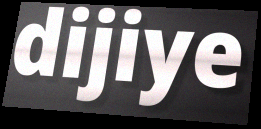
dijiye